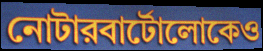
নোটারবার্টোলোকেও